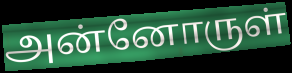
அன்னோருள்